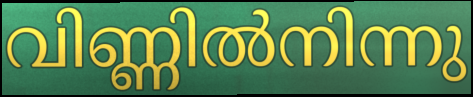
വിണ്ണിൽനിന്നു